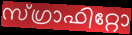
സ്ഗ്രാഫിറ്റോ